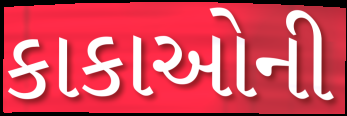
કાકાઓની